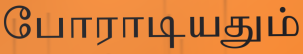
போராடியதும்